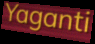
Yaganti